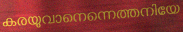
കരയുവാനെന്നെത്തനിയേ